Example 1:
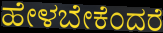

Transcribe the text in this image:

ಹೇಳಬೇಕೆಂದರೆ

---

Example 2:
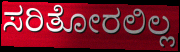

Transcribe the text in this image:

ಸರಿತೋರಲಿಲ್ಲ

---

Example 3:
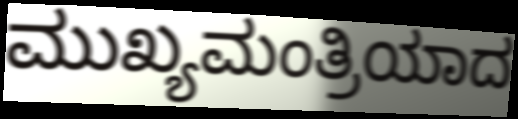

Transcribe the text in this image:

ಮುಖ್ಯಮಂತ್ರಿಯಾದ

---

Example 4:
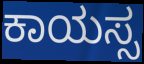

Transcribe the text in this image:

ಕಾಯಸ್ಸ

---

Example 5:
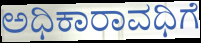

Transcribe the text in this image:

ಅಧಿಕಾರಾವಧಿಗೆ